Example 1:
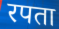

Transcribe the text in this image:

रपता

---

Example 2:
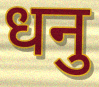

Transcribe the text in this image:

धनु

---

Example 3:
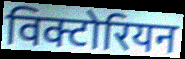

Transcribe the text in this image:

विक्टोरियन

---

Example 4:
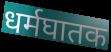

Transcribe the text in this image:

धर्मघातक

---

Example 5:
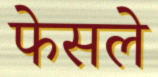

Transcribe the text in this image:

फेसले